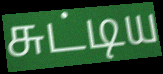
சுட்டிய